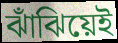
ঝাঁঝিয়েই